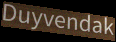
Duyvendak